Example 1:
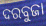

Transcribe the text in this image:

ଦରବୁଜା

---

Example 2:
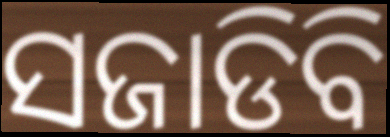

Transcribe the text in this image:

ସଜାଡିବି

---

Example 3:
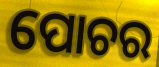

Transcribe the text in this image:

ପୋଚର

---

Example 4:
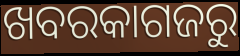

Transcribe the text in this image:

ଖବରକାଗଜରୁ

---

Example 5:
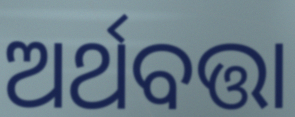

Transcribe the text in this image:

ଅର୍ଥବତ୍ତା